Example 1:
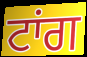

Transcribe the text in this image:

ਟਾਂਗ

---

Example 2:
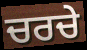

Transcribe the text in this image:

ਚਰਚੇ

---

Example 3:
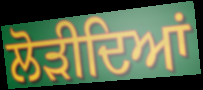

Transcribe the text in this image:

ਲੋੜੀਦਿਆਂ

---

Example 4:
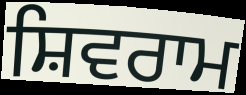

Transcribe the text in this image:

ਸ਼ਿਵਰਾਮ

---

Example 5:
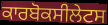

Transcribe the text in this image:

ਕਾਰਬੋਕਸੀਲੇਟਸ